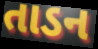
તાડન